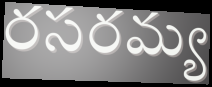
రసరమ్య